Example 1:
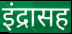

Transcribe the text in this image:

इंद्रासह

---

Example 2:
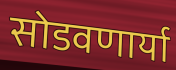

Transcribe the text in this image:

सोडवणार्या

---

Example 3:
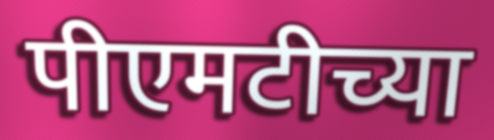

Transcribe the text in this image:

पीएमटीच्या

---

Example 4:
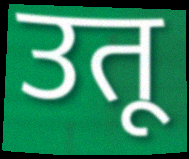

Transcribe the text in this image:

उतू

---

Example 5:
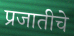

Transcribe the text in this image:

प्रजातीचे